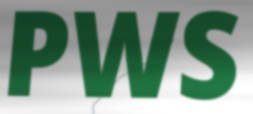
PWS